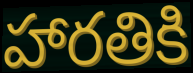
హారతికి